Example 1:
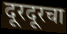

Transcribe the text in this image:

दूरदूरचा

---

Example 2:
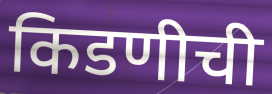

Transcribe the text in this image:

किडणीची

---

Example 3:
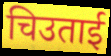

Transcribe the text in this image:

चिउताई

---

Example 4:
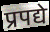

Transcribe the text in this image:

प्रपद्ये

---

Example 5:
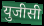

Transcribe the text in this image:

युजीसी